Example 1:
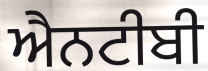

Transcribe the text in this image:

ਐਨਟੀਬੀ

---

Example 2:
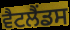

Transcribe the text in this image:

ਵੈਟਲੈਂਡਸ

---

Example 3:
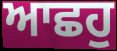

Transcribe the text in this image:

ਆਛਹੁ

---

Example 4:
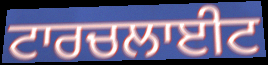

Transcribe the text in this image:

ਟਾਰਚਲਾਈਟ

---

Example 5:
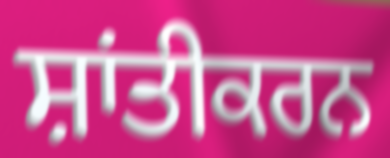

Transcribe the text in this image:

ਸ਼ਾਂਤੀਕਰਨ